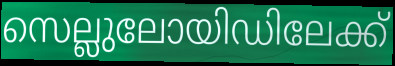
സെല്ലുലോയിഡിലേക്ക്